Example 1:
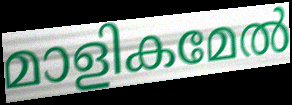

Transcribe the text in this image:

മാളികമേൽ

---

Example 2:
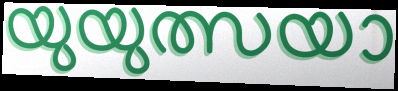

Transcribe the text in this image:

യുയുത്സയാ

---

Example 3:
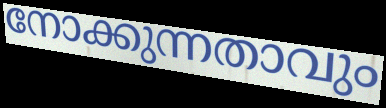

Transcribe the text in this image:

നോക്കുന്നതാവും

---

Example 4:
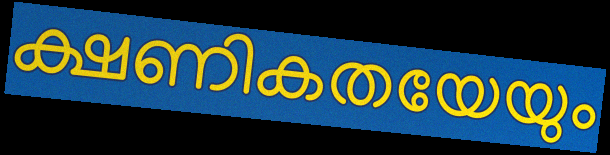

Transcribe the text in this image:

ക്ഷണികതയേയും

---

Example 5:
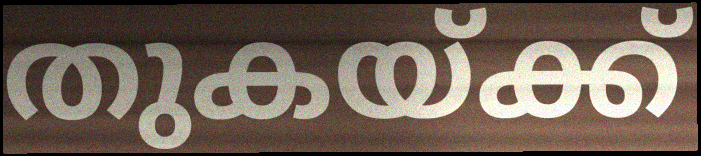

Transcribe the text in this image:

തുകയ്ക്ക്